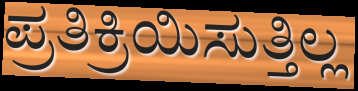
ಪ್ರತಿಕ್ರಿಯಿಸುತ್ತಿಲ್ಲ